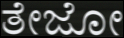
ತೇಜೋ